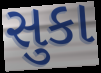
સુકા